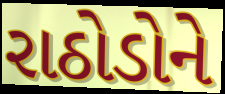
રાઠોડોને